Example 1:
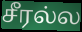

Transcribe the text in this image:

சீரல்ல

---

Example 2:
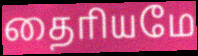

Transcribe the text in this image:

தைரியமே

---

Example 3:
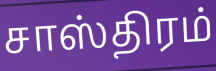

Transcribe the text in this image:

சாஸ்திரம்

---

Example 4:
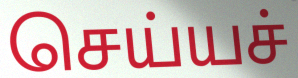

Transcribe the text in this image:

செய்யச்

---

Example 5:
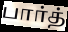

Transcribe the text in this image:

பார்த்